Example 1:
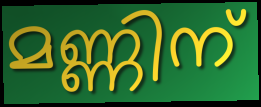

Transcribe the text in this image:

മണ്ണിന്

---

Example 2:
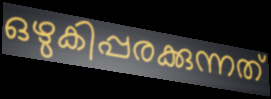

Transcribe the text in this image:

ഒഴുകിപ്പരക്കുന്നത്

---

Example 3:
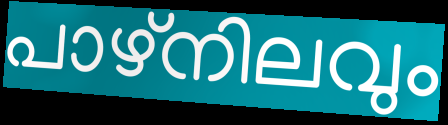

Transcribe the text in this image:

പാഴ്നിലവും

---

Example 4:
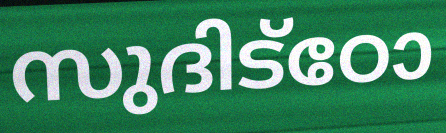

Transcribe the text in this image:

സുദിട്ഠോ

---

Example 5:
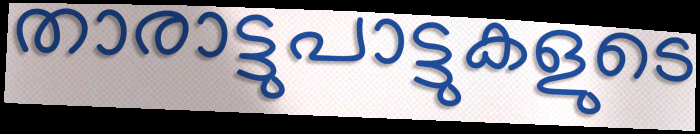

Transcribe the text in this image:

താരാട്ടുപാട്ടുകളുടെ